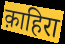
क़ाहिरा